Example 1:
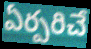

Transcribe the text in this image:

ఏర్పరిచే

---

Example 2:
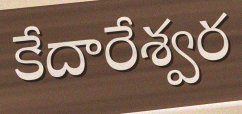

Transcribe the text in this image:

కేదారేశ్వర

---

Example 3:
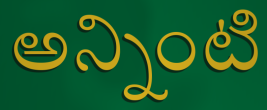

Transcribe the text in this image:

అన్నింటి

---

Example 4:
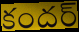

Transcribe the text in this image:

కందర్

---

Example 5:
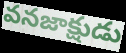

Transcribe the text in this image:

వనజాక్షుడు